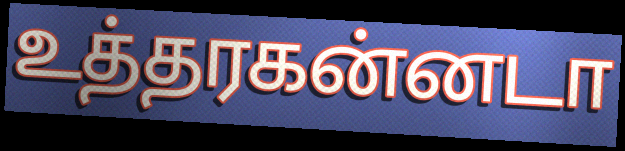
உத்தரகன்னடா